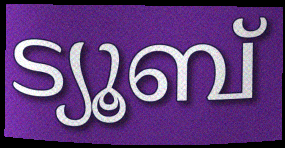
ട്യൂബ്